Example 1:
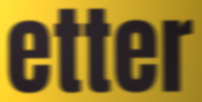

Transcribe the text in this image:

etter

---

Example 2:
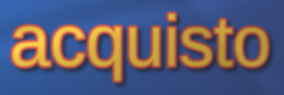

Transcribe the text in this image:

acquisto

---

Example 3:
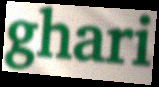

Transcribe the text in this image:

ghari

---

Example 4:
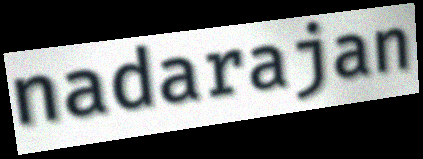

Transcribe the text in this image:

nadarajan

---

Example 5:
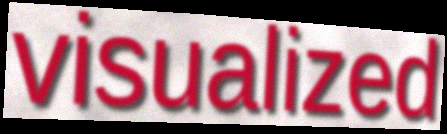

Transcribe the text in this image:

visualized